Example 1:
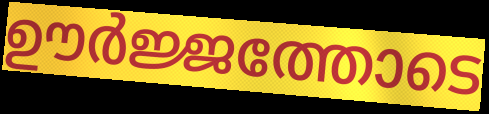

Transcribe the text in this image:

ഊർജ്ജത്തോടെ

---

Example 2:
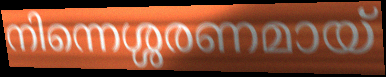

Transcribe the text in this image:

നിന്നെശ്ശരണമായ്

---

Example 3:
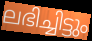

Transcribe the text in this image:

ലഭിച്ചിട്ടും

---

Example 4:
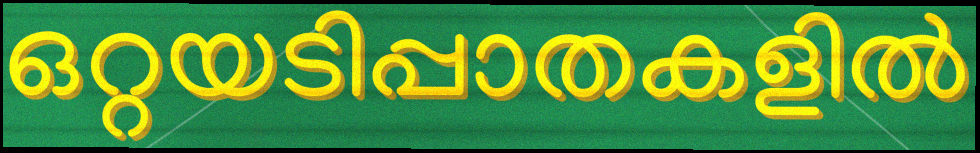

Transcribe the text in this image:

ഒറ്റയടിപ്പാതകളിൽ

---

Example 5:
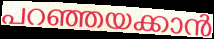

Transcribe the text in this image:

പറഞ്ഞയക്കാൻ